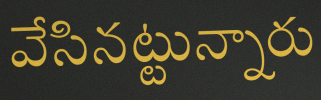
వేసినట్టున్నారు